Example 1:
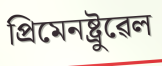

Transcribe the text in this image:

প্ৰিমেনষ্ট্ৰুৱেল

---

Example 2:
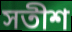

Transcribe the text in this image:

সতীশ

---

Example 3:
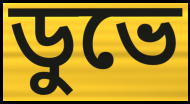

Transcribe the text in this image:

ডুভে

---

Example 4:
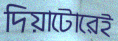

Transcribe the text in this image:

দিয়াটোৱেই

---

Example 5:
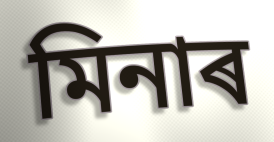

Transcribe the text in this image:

মিনাৰ